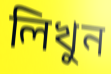
লিখুন